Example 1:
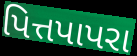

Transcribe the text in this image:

પિત્તપાપરા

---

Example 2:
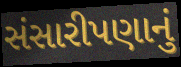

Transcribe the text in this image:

સંસારીપણાનું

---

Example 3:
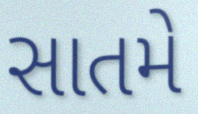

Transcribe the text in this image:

સાતમે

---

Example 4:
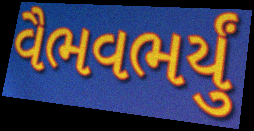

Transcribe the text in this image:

વૈભવભર્યું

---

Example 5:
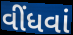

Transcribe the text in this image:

વીંધવાં